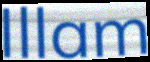
Illam